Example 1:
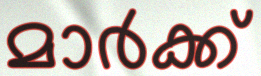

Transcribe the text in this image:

മാർക്ക്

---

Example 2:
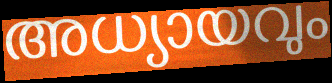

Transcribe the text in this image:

അധ്യായവും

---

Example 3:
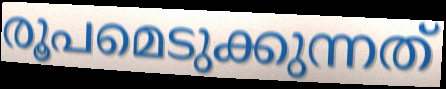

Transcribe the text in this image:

രൂപമെടുക്കുന്നത്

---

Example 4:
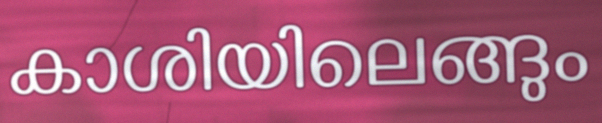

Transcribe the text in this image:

കാശിയിലെങ്ങും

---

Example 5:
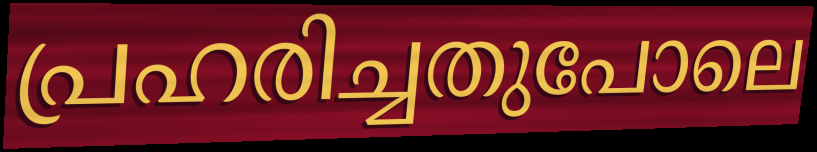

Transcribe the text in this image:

പ്രഹരിച്ചതുപോലെ